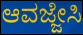
ಆವಜ್ಜೇಸಿ